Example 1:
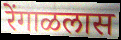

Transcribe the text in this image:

रेंगाळलास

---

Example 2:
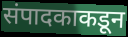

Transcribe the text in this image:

संपादकाकडून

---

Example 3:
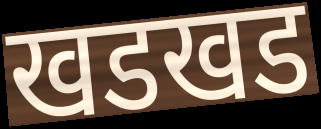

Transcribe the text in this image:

खडखड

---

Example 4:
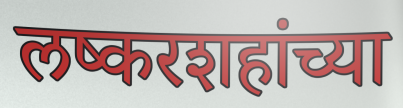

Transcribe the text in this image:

लष्करशहांच्या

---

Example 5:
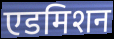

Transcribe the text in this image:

एडमिशन